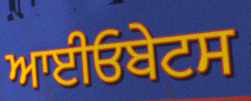
ਆਈਓਬੇਟਸ